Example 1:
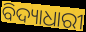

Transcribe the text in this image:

ବିଦ୍ୟାଧାରୀ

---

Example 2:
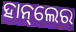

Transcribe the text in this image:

ହାନ୍‌ଲେର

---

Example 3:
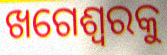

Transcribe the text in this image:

ଖଗେଶ୍ୱରକୁ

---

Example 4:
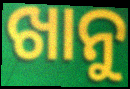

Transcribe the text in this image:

ଖାନୁ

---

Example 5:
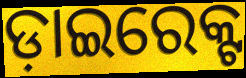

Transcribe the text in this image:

ଡ଼ାଇରେକ୍ଟ